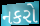
નકરો